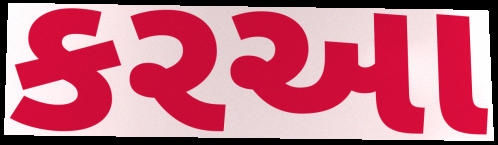
કરઆ